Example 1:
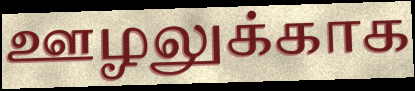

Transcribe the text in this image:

ஊழலுக்காக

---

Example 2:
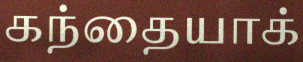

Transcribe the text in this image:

கந்தையாக்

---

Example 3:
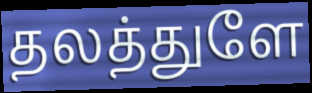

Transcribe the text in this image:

தலத்துளே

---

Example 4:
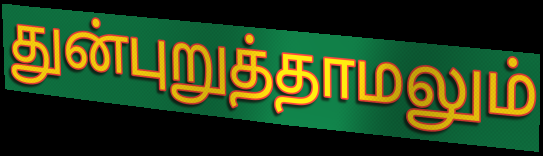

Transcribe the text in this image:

துன்புறுத்தாமலும்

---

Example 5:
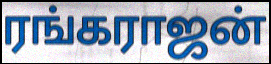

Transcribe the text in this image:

ரங்கராஜன்